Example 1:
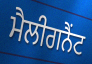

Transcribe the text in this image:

ਮੈਲੀਗਨੈਂਟ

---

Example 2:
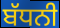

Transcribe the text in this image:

ਬੱਧਨੀ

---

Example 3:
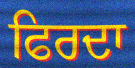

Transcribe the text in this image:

ਫਿਰਦਾ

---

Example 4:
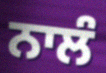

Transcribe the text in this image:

ਨਾਲੰ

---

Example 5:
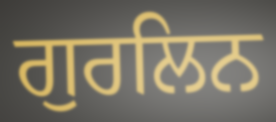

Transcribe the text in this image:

ਗੁਰਲਿਨ